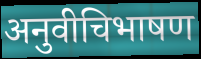
अनुवीचिभाषण